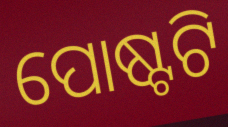
ପୋଷ୍ଟଟି